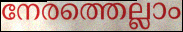
നേരത്തെല്ലാം